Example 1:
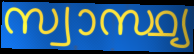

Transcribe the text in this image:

സ്വാസ്ഥ്യ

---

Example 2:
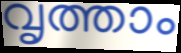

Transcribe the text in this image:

വൃത്താം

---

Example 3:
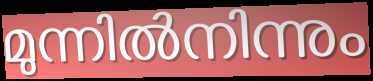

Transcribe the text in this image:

മുന്നിൽനിന്നും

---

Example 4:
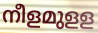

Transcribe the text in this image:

നീളമുളള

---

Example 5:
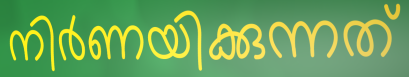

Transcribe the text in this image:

നിർണയിക്കുന്നത്